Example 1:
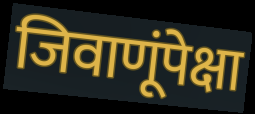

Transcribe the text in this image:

जिवाणूंपेक्षा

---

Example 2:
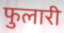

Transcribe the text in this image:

फुलारी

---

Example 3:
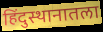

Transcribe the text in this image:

हिंदुस्थानातला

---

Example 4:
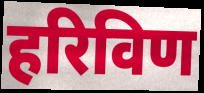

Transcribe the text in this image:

हरिविण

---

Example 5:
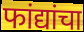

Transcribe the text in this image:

फांद्यांचा